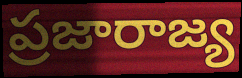
ప్రజారాజ్య